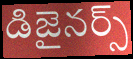
డిజైనర్స్